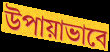
উপায়াভাবে